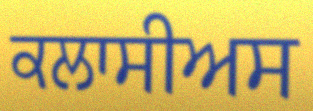
ਕਲਾਸੀਅਸ